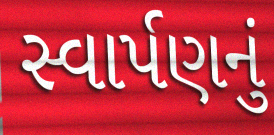
સ્વાર્પણનું